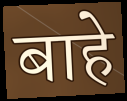
बाहे